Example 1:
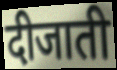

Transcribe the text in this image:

दीजाती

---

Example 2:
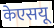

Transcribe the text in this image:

केएसयू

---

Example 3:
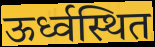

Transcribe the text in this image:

ऊर्ध्वस्थित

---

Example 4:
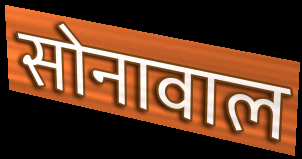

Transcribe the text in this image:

सोनावाल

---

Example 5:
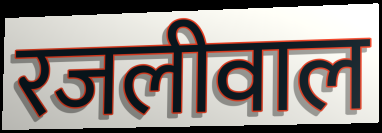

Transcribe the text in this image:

रजलीवाल